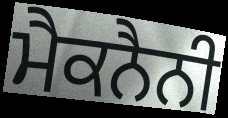
ਮੈਕਨੈਨੀ